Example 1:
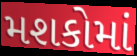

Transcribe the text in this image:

મશકોમાં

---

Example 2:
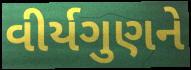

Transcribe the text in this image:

વીર્યગુણને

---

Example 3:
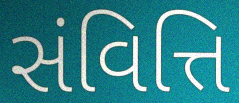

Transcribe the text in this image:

સંવિત્તિ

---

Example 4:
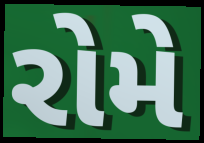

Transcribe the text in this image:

રોમે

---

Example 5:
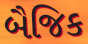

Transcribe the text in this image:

બૈજિક